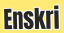
Enskri